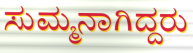
ಸುಮ್ಮನಾಗಿದ್ದರು